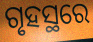
ଗୃହସ୍ଥରେ